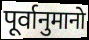
पूर्वानुमानो